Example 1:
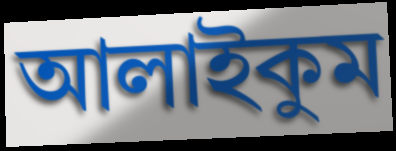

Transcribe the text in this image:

আলাইকুম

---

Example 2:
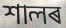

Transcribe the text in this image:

শালৰ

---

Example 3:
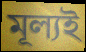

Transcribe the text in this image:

মূল্যই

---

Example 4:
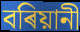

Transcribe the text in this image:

বৰিয়ানী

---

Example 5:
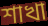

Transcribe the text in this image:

শাখা